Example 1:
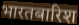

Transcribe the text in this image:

भारतबारिश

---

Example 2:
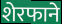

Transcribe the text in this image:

शेरफाने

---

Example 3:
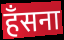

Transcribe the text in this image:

हँसना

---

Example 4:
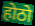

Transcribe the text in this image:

होठो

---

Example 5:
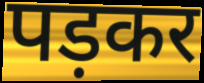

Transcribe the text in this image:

पड़कर